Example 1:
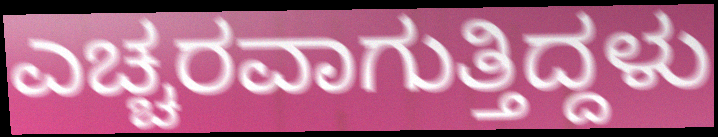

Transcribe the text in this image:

ಎಚ್ಚರವಾಗುತ್ತಿದ್ದಳು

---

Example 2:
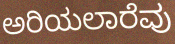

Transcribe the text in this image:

ಅರಿಯಲಾರೆವು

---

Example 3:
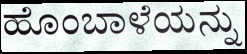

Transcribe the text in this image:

ಹೊಂಬಾಳೆಯನ್ನು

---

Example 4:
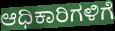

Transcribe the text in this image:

ಆಧಿಕಾರಿಗಳಿಗೆ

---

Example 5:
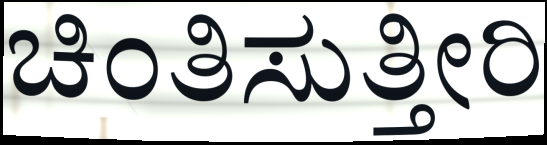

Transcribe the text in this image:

ಚಿಂತಿಸುತ್ತೀರಿ